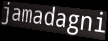
jamadagni